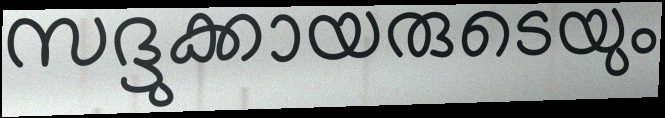
സദ്ദുക്കായരുടെയും